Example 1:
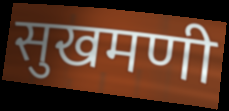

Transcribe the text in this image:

सुखमणी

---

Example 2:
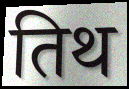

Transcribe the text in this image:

तिथ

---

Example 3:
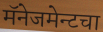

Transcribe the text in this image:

मॅनेजमेन्टचा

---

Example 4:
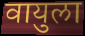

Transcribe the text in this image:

वायुला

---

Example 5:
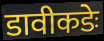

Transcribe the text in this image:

डावीकडेः